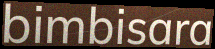
bimbisara